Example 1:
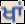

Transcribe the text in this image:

ਖਾਂ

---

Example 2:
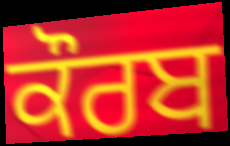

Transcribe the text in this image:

ਕੌਰਬ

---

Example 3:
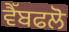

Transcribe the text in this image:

ਵੈੱਬਫਲੋ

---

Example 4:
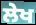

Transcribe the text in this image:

ਲੇਖ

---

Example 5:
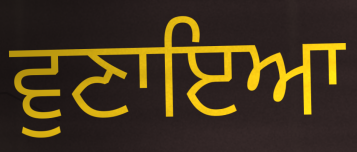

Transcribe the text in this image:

ਵੁਣਾਇਆ